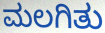
ಮಲಗಿತು